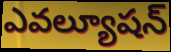
ఎవల్యూషన్